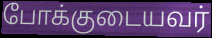
போக்குடையவர்